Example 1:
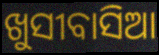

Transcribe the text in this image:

ଖୁସୀବାସିଆ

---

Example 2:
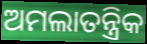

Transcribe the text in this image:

ଅମଲାତନ୍ତ୍ରିକ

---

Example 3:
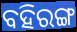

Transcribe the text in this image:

ବହିରଙ୍ଗ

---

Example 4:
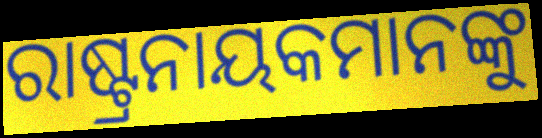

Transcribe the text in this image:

ରାଷ୍ଟ୍ରନାୟକମାନଙ୍କୁ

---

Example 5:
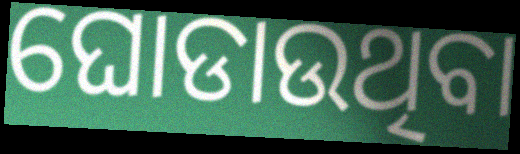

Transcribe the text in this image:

ଘୋଡାଉଥିବା